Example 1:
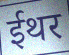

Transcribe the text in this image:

ईथर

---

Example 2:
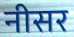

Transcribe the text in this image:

नीसर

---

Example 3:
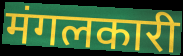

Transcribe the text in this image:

मंगलकारी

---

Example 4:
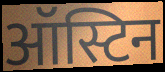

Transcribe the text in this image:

ऑस्टिन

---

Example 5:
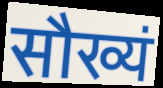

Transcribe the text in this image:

सौख्यं